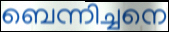
ബെന്നിച്ചനെ